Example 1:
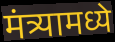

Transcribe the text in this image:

मंत्र्यामध्ये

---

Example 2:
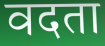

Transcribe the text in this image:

वदता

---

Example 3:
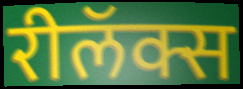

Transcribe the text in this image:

रीलॅक्स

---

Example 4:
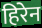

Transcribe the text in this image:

हिरेन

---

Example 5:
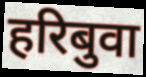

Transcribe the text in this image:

हरिबुवा